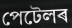
পেটেলৰ